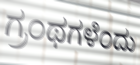
ಗ್ರಂಥಗಳೆಂದು